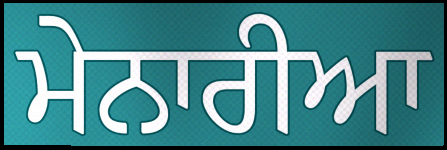
ਮੇਨਾਰੀਆ